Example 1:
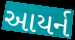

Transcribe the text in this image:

આયર્ન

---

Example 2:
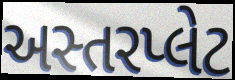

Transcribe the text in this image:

અસ્તરપ્લેટ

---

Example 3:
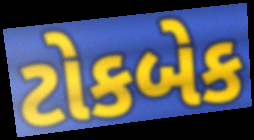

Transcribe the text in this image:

ટોકબેક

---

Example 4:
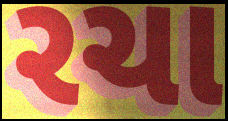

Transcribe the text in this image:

રચા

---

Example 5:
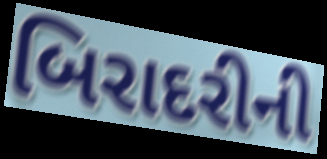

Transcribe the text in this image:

બિરાદરીની